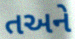
તઅને